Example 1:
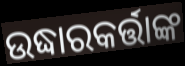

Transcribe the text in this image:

ଉଦ୍ଧାରକର୍ତ୍ତାଙ୍କ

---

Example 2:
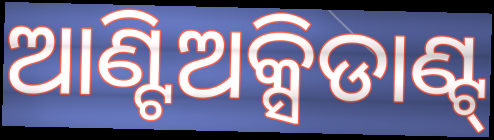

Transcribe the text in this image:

ଆଣ୍ଟିଅକ୍ସିଡାଣ୍ଟ୍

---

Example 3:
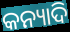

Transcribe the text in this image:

କନ୍ୟାଦି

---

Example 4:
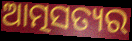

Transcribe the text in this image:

ଆତ୍ମସତ୍ୟର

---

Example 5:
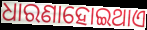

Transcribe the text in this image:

ଧାରଣାହୋଇଥାଏ